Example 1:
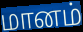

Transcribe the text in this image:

மானம்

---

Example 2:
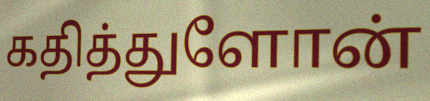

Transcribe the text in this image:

கதித்துளோன்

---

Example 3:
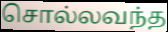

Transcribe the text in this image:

சொல்லவந்த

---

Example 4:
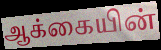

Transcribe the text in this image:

ஆக்கையின்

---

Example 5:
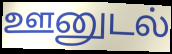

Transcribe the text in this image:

ஊனுடல்